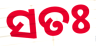
ସତଃ